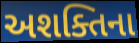
અશક્તિના